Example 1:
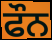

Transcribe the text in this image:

ਫੌਨ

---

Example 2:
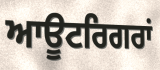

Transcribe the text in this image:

ਆਊਟਰਿਗਰਾਂ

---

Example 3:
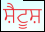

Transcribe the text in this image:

ਸ਼ੈਟੂਸ਼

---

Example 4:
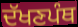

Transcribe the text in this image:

ਦੱਖਣਪੰਥ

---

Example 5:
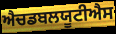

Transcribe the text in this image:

ਐਚਡਬਲਯੂਟੀਐਸ